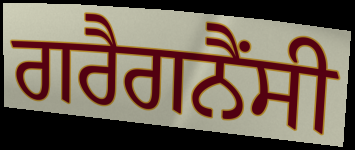
ਗਰੈਗਨੈਂਸੀ